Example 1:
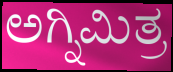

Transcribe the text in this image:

ಅಗ್ನಿಮಿತ್ರ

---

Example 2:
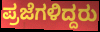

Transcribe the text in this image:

ಪ್ರಜೆಗಳಿದ್ದರು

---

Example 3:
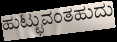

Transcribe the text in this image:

ಹುಟ್ಟುವಂತಹುದು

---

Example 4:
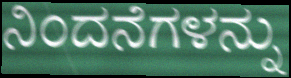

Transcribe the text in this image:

ನಿಂದನೆಗಳನ್ನು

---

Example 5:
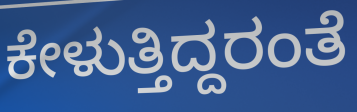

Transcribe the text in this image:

ಕೇಳುತ್ತಿದ್ದರಂತೆ